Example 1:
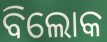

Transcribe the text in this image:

ବିଲୋକ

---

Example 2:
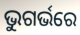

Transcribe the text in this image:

ଭୁଗର୍ଭରେ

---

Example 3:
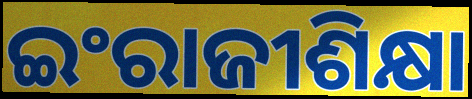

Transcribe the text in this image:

ଇଂରାଜୀଶିକ୍ଷା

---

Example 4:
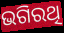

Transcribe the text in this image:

ଭଗିରଥି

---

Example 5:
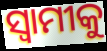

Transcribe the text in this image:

ସ୍ୱାମୀକୁ